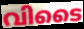
വിടൈ